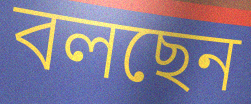
বলছেন